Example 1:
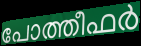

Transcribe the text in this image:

പോത്തീഫർ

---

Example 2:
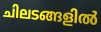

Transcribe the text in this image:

ചിലടങ്ങളിൽ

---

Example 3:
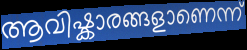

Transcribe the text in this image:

ആവിഷ്കാരങ്ങളാണെന്ന്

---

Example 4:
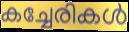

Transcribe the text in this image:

കച്ചേരികൾ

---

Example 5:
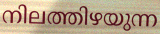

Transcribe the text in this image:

നിലത്തിഴയുന്ന